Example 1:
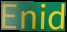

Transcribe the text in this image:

Enid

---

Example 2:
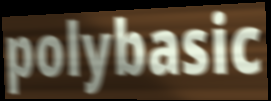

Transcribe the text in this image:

polybasic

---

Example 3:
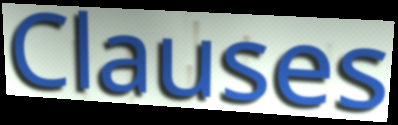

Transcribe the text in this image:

Clauses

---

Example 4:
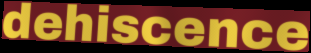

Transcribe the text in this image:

dehiscence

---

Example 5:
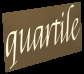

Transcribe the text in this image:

quartile